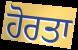
ਹੋਰਤਾ